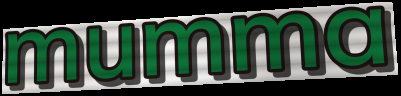
mumma